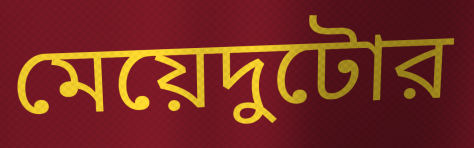
মেয়েদুটোর